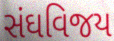
સંઘવિજય